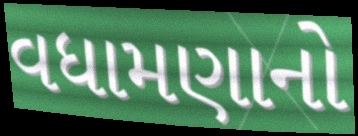
વધામણાનો